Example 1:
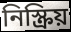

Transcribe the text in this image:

নিস্ক্রিয়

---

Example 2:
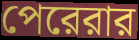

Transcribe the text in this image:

পেরেরার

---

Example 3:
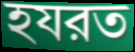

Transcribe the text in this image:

হযরত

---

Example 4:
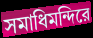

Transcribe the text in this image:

সমাধিমন্দিরে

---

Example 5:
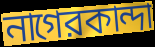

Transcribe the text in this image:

নাগেরকান্দা